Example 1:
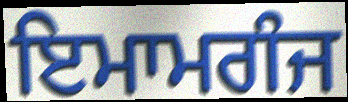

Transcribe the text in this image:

ਇਮਾਮਗੰਜ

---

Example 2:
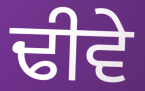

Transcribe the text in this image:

ਢੀਵੇ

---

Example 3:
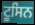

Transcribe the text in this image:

ਟੂਸਿਨ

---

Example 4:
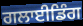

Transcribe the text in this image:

ਗਲਾਈਡਿੰਗ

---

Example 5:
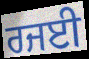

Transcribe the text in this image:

ਰਜਈ